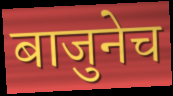
बाजुनेच